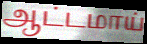
ஆட்டமாய்